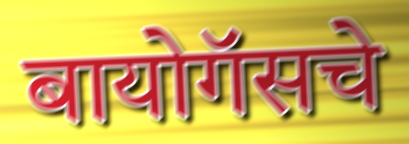
बायोगॅसचे